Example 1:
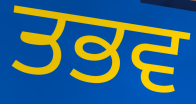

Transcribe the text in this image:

ਤਭਵ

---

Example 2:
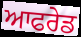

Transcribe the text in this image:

ਆਫਰੇਡ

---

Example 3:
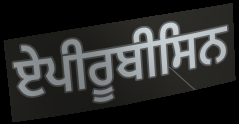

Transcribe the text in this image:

ਏਪੀਰੂਬੀਸਿਨ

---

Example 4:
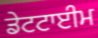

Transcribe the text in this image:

ਡੇਟਟਾਈਮ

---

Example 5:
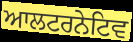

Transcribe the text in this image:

ਆਲਟਰਨੇਟਿਵ